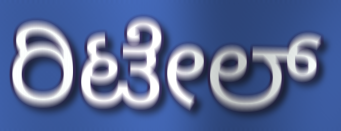
ರಿಟೇಲ್